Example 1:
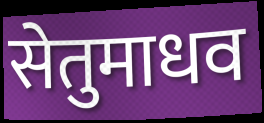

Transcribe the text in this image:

सेतुमाधव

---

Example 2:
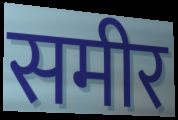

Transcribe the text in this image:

समीर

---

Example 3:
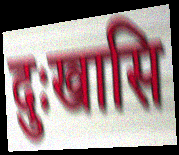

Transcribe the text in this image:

दुःखासि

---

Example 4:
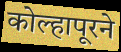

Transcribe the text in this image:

कोल्हापूरने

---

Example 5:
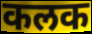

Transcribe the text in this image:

कलक